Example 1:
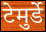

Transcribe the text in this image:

टेमुर्डे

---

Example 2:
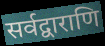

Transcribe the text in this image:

सर्वद्वाराणि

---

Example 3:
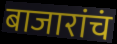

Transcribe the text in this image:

बाजारांचं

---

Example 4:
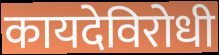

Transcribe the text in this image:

कायदेविरोधी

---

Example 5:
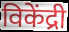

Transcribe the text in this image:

विकेंद्री